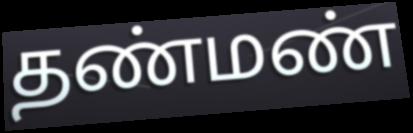
தண்மண்